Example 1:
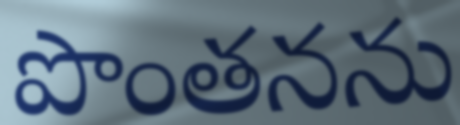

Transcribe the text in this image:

పొంతనను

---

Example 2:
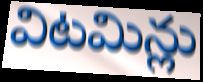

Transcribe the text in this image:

విటమిన్లు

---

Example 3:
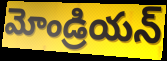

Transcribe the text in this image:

మోండ్రియన్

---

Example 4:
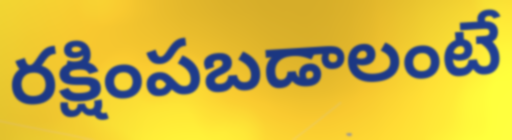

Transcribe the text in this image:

రక్షింపబడాలంటే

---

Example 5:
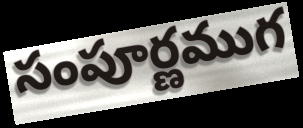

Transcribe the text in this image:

సంపూర్ణముగ